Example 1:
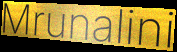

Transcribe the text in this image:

Mrunalini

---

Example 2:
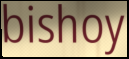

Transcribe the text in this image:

bishoy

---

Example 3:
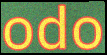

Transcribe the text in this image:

odo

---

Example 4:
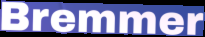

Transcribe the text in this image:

Bremmer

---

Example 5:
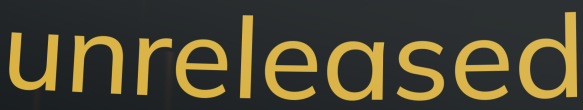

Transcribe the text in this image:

unreleased